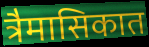
त्रैमासिकात